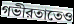
গভীরতাতেও